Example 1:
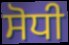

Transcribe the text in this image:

ਸੋਧੀ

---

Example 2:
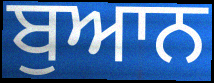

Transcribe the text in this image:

ਬੁਆਨ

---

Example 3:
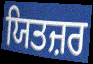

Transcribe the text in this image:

ਯਿਤਜ਼ਰ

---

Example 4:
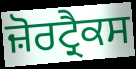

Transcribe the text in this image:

ਜ਼ੋਰਟ੍ਰੈਕਸ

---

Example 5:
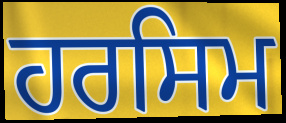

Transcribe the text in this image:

ਹਰਸਿਮ